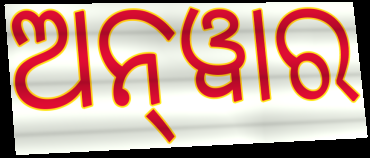
ଅନ୍‌ୱାର